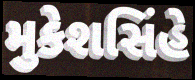
મુકેશસિંહે